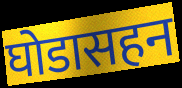
घोडासहन